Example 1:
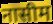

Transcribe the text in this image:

नासीम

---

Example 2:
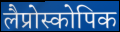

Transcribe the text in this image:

लैप्रोस्कोपिक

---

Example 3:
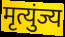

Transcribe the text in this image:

मृत्युंज्य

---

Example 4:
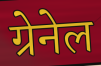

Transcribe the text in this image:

ग्रेनेल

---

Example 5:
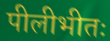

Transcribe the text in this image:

पीलीभीतः